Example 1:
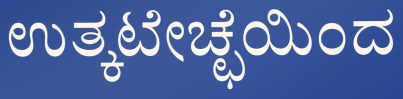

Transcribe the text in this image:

ಉತ್ಕಟೇಚ್ಛೆಯಿಂದ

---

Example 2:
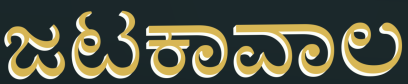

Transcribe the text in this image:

ಜಟಕಾವಾಲ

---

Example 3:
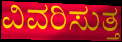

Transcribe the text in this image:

ವಿವರಿಸುತ್ತ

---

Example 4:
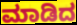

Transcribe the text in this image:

ಮಾಡಿದ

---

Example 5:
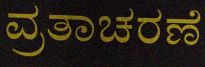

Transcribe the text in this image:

ವ್ರತಾಚರಣೆ